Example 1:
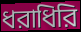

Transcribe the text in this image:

ধরাধিরি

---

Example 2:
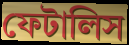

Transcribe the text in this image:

ফেটালিস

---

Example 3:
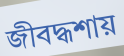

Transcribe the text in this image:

জীবদ্ধশায়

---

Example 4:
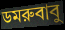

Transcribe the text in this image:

ডমরুবাবু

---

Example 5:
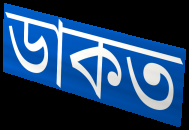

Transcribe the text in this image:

ডাকত